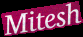
Mitesh